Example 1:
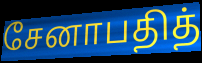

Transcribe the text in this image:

சேனாபதித்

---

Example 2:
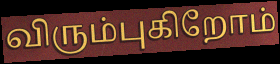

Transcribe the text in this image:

விரும்புகிறோம்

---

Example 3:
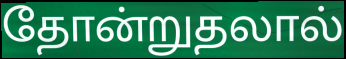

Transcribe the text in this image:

தோன்றுதலால்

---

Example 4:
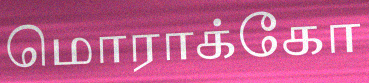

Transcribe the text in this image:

மொராக்கோ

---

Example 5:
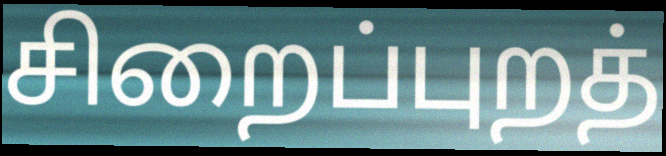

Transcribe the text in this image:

சிறைப்புறத்